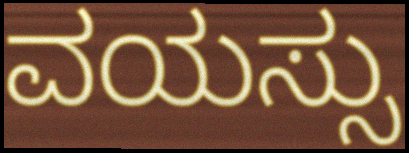
ವಯಸ್ಸು